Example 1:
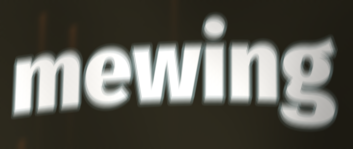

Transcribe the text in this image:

mewing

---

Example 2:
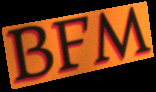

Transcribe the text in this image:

BFM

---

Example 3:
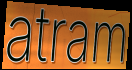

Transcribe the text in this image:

atram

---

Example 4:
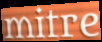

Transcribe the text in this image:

mitre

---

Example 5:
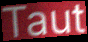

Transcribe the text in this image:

Taut